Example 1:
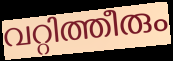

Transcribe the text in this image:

വറ്റിത്തീരും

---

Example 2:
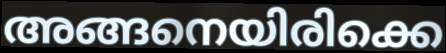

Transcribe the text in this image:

അങ്ങനെയിരിക്കെ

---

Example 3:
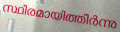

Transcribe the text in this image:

സ്ഥിരമായിത്തീർന്നു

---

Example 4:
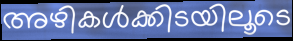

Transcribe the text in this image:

അഴികൾക്കിടയിലൂടെ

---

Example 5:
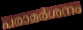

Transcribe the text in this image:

പരാമർശനം